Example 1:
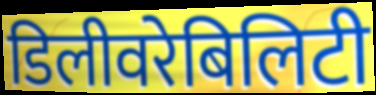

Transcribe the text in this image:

डिलीवरेबिलिटी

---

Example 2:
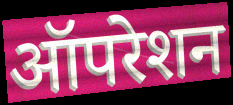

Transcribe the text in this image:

ऑपरेशन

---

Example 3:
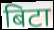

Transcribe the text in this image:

बिटा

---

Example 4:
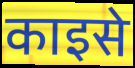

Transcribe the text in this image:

काइसे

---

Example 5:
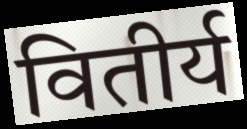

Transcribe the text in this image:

वितीर्य